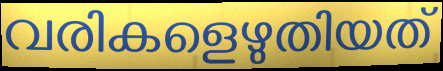
വരികളെഴുതിയത്